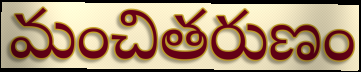
మంచితరుణం